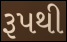
રૂપથી